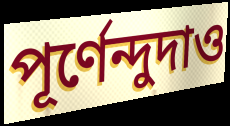
পূর্ণেন্দুদাও